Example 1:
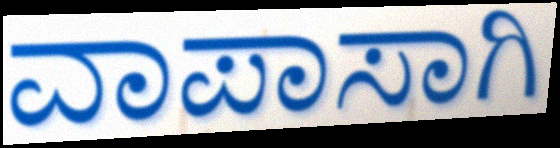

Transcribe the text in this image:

ವಾಪಾಸಾಗಿ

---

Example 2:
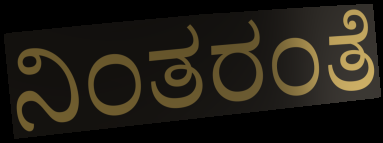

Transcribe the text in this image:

ನಿಂತರಂತೆ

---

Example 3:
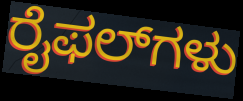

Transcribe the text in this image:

ರೈಫಲ್‌ಗಳು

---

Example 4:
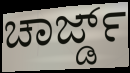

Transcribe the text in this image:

ಚಾರ್ಜ್ಡ್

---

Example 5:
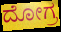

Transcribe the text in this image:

ದೋಗ್ರ